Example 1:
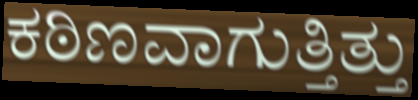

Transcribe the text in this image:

ಕಠಿಣವಾಗುತ್ತಿತ್ತು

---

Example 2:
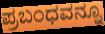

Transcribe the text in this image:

ಪ್ರಬಂಧವನ್ನೂ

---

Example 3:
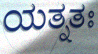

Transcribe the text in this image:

ಯತ್ನತಃ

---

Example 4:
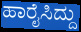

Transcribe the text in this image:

ಹಾರೈಸಿದ್ದು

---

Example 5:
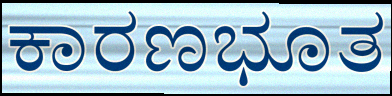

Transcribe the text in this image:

ಕಾರಣಭೂತ